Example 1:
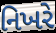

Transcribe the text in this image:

નિખરે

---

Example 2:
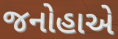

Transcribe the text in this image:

જનોહાએ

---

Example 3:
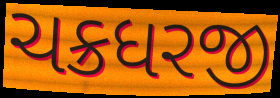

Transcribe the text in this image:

ચક્રધરજી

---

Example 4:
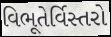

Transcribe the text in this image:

વિભૂતેર્વિસ્તરો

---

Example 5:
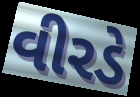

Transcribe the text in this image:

વીરડે